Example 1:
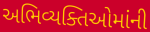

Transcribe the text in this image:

અભિવ્યક્તિઓમાંની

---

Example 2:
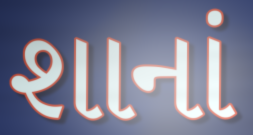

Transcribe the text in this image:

શાનાં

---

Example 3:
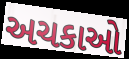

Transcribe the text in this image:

અચકાઓ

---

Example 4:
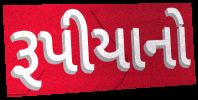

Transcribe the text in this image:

રૂપીયાનો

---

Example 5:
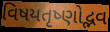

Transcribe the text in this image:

વિષયતૃષ્ણોદ્ભવ